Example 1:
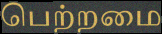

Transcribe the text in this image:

பெற்றமை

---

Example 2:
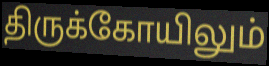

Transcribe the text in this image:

திருக்கோயிலும்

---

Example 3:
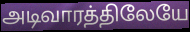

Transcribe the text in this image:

அடிவாரத்திலேயே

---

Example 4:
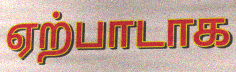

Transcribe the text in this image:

ஏற்பாடாக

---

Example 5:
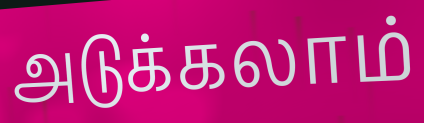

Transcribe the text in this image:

அடுக்கலாம்